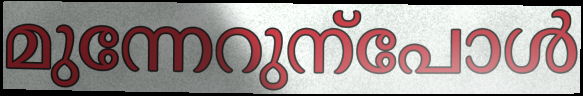
മുന്നേറുന്പോൾ